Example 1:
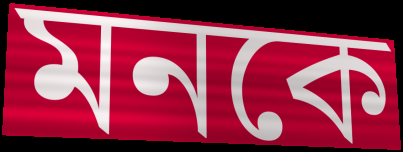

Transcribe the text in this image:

মনকে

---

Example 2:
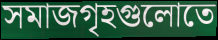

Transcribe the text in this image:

সমাজগৃহগুলোতে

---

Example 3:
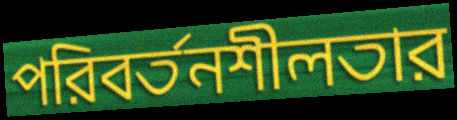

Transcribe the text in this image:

পরিবর্তনশীলতার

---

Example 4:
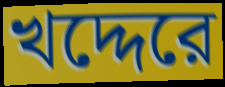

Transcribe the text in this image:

খদ্দেরে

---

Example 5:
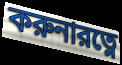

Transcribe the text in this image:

করুনারত্নে